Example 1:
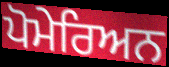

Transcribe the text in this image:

ਪੋਮੇਰਿਅਨ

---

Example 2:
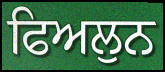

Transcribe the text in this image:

ਫਿਅਲੁਨ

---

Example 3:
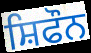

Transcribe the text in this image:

ਸ਼ਿਫੌਨ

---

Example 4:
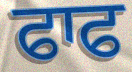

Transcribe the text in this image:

ਫਾਫ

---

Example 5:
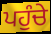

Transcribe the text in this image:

ਪਹੁੰਚੇ